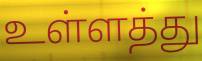
உள்ளத்து